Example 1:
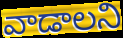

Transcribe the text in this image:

వాడాలని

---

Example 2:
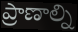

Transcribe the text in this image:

ప్రాణాల్ని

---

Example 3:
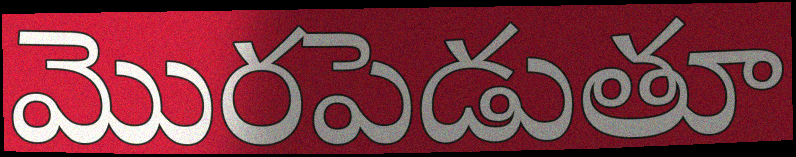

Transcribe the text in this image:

మొరపెడుతూ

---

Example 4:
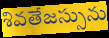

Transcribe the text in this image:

శివతేజస్సును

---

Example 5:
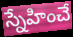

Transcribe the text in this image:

స్నేహించే